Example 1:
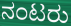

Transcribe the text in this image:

ನಂಟರು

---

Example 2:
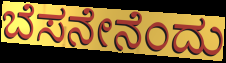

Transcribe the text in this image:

ಬೆಸನೇನೆಂದು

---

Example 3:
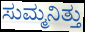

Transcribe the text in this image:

ಸುಮ್ಮನಿತ್ತು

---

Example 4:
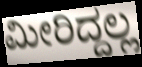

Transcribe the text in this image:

ಮೀರಿದ್ದಲ್ಲ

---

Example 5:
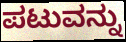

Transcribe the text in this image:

ಪಟುವನ್ನು